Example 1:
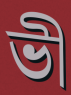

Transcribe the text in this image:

ভী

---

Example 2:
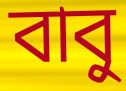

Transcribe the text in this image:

বাবু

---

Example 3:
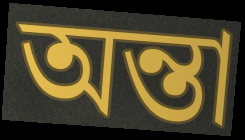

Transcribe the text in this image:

অন্তা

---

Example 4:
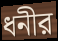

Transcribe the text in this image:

ধনীর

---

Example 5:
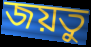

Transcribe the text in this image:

জয়তু